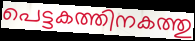
പെട്ടകത്തിനകത്തു